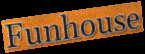
Funhouse